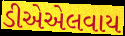
ડીએએલવાય